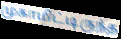
முகாமிட்டிருந்த